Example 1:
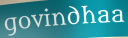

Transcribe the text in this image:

govindhaa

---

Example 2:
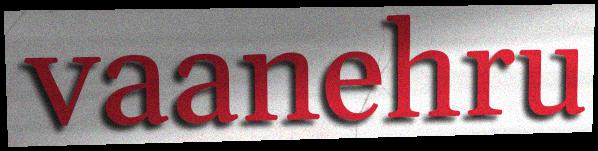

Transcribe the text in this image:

vaanehru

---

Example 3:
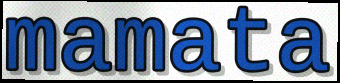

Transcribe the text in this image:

mamata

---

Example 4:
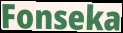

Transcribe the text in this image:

Fonseka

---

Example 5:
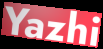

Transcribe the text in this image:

Yazhi